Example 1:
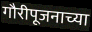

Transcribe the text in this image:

गौरीपूजनाच्या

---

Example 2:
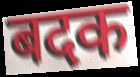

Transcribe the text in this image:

बदक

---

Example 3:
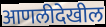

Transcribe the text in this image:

आणलीदेखील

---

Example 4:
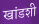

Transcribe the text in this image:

खांडशी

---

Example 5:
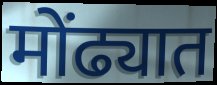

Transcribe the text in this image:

मोंढ्यात